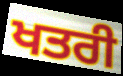
ਖਤਰੀ